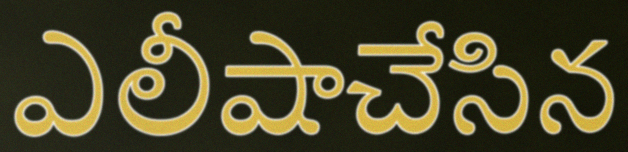
ఎలీషాచేసిన